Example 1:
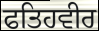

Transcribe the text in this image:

ਫਤਿਹਵੀਰ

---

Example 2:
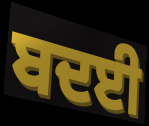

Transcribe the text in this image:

ਬਦਈ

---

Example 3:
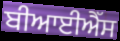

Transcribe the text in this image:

ਬੀਆਈਐੱਸ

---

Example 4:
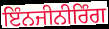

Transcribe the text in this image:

ਇੰਨਜੀਨੀਰਿੰਗ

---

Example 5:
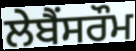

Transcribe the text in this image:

ਲੇਬੈਂਸਰੌਮ